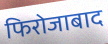
फिरोजाबाद